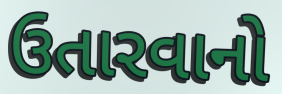
ઉતારવાનો